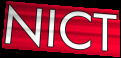
NICT